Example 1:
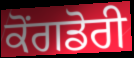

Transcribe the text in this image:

ਕੋਂਗਡੋਰੀ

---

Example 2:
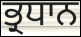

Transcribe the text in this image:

ਭ੍ਰਧਾਨ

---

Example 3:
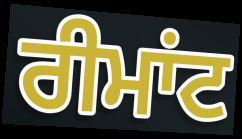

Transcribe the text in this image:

ਰੀਮਾਂਟ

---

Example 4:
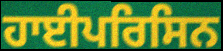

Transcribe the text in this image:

ਹਾਈਪਰਿਸਿਨ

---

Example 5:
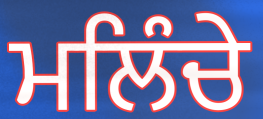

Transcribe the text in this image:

ਮਲਿੰਚੇ